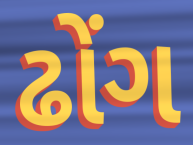
ઢોંગ